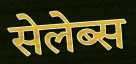
सेलेब्स